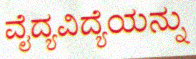
ವೈದ್ಯವಿದ್ಯೆಯನ್ನು